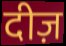
दीज़